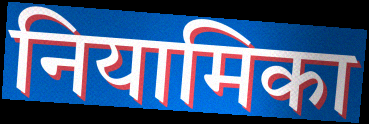
नियामिका